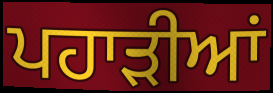
ਪਹਾਡ਼ੀਆਂ